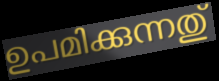
ഉപമിക്കുന്നതു്